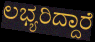
ಲಭ್ಯರಿದ್ದಾರೆ